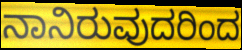
ನಾನಿರುವುದರಿಂದ